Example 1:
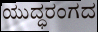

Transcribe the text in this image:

ಯುದ್ಧರಂಗದ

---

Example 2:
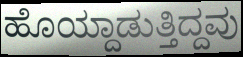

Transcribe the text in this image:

ಹೊಯ್ದಾಡುತ್ತಿದ್ದವು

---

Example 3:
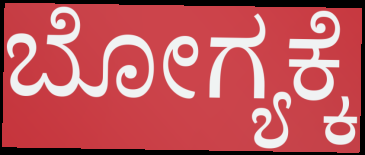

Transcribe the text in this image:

ಬೋಗ್ಯಕ್ಕೆ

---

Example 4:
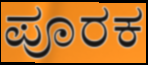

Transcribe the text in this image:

ಪೂರಕ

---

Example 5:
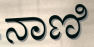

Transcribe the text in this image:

ನಾಣಿ